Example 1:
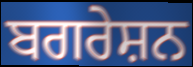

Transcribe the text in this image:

ਬਗਰੇਸ਼ਨ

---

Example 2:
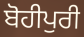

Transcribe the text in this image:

ਬੋਹੀਪੁਰੀ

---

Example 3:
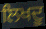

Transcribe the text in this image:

ਲਿਖਦੂ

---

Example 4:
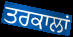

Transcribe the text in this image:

ਤਰਕਾਲਾਂ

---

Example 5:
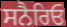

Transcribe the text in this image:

ਸਨੈਰਿਓ